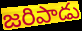
జరిపాడు